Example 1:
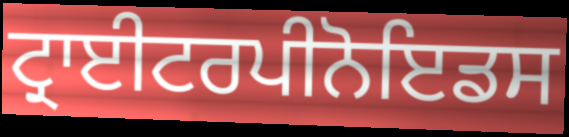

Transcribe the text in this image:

ਟ੍ਰਾਈਟਰਪੀਨੋਇਡਸ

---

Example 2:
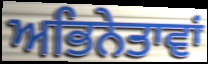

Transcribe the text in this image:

ਅਭਿਨੇਤਾਵਾਂ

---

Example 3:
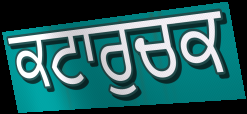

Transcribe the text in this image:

ਕਟਾਰੁਚਕ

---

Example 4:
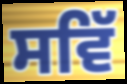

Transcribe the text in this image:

ਸਵਿੱ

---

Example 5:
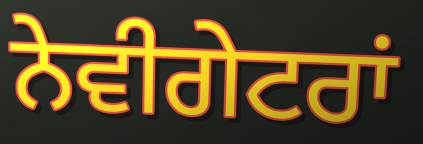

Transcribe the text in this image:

ਨੇਵੀਗੇਟਰਾਂ